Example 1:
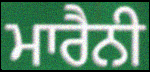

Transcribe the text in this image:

ਮਾਰੈਨੀ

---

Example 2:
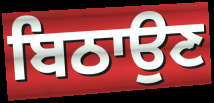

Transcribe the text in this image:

ਬਿਠਾਉਣ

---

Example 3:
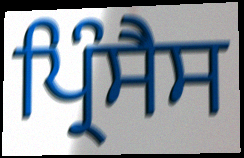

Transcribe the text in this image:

ਪ੍ਰਿੰਸੈਸ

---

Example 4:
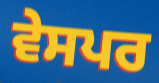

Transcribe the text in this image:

ਵੇਸਪਰ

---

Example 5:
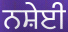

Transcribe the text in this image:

ਨਸ਼ੇਈ